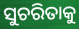
ସୁଚରିତାକୁ